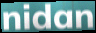
nidan